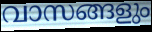
വാസങ്ങളും